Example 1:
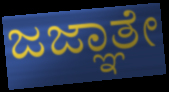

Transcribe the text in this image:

ಜಜ್ಞಾತೇ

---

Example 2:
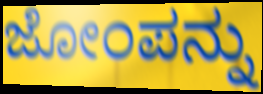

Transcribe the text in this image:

ಜೋಂಪನ್ನು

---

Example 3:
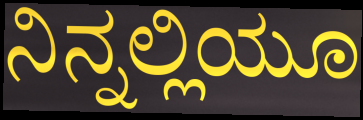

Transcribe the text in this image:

ನಿನ್ನಲ್ಲಿಯೂ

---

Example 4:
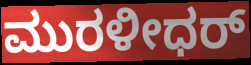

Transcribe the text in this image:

ಮುರಳೀಧರ್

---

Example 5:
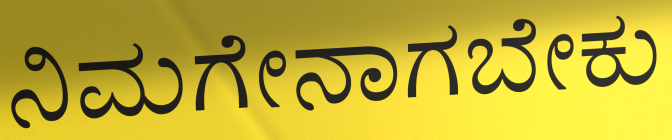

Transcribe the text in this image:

ನಿಮಗೇನಾಗಬೇಕು